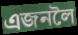
এজনলৈ